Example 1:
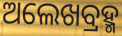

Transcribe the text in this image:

ଅଲେଖବ୍ରହ୍ମ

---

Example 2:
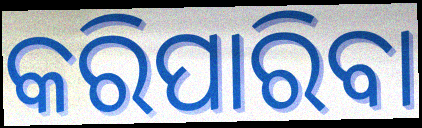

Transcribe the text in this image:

କରିପାରିବା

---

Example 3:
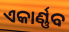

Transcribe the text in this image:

ଏକାର୍ଣ୍ଣବ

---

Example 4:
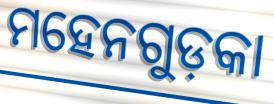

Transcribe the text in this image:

ମହେନଗୁଡ଼କା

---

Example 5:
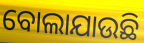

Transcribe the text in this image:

ବୋଲାଯାଉଛି